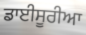
ਡਾਈਸੂਰੀਆ